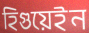
হিগুয়েইন